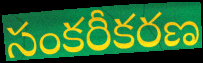
సంకరీకరణ